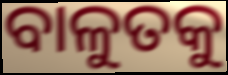
ବାଳୁତକୁ